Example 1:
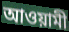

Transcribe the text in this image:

আওয়ামী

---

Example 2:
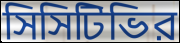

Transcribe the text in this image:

সিসিটিভির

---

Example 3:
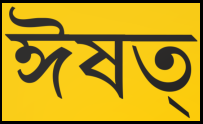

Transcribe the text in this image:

ঈষত্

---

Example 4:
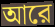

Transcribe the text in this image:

আরে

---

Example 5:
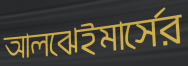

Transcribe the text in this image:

আলঝেইমার্সের